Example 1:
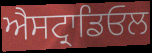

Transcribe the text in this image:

ਐਸਟ੍ਰਾਡਿਓਲ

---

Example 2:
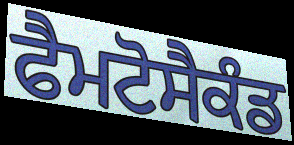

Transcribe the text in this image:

ਫੈਮਟੋਸੈਕੰਡ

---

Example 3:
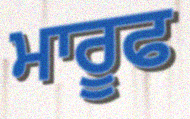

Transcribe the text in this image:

ਮਾਰੂਫ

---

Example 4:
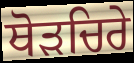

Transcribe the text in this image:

ਥੋੜਚਿਰੇ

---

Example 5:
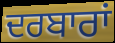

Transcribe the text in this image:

ਦਰਬਾਰਾਂ